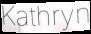
Kathryn